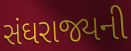
સંઘરાજ્યની